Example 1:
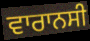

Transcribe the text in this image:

ਵਾਰਾਨਸੀ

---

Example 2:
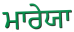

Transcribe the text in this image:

ਮਾਰੇਯਾ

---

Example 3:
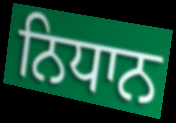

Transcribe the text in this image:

ਨਿਧਾਨ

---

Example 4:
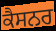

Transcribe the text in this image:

ਕੈਸਨਰ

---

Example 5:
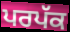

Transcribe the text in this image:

ਪਰਪੱਕ